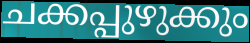
ചക്കപ്പുഴുക്കും